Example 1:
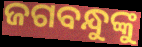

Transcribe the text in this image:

ଜଗବନ୍ଧୁଙ୍କୁ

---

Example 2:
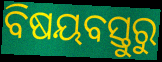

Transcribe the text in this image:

ବିଷୟବସ୍ତୁରୁ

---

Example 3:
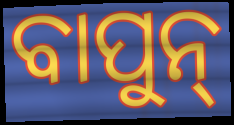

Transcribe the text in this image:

ବାପୁନ୍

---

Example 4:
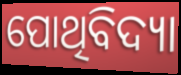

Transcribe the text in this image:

ପୋଥିବିଦ୍ୟା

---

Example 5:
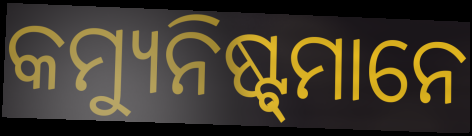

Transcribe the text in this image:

କମ୍ୟୁନିଷ୍ଟ୍‌ମାନେ